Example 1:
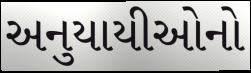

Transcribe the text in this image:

અનુયાયીઓનો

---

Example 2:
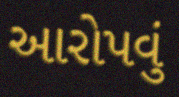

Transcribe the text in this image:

આરોપવું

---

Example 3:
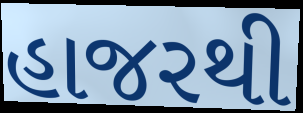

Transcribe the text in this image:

હાજરથી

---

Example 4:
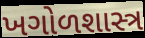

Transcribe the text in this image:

ખગોળશાસ્ત્ર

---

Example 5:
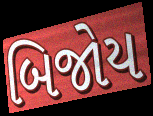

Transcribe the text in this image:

બિજોય